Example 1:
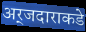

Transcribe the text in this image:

अर्जदाराकडे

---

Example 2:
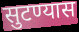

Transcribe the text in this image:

सुटण्यास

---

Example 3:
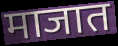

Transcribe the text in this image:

माजात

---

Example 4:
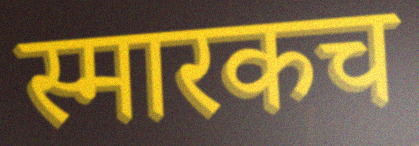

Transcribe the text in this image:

स्मारकच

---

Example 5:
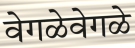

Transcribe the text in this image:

वेगळेवेगळे